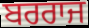
ਬਰਰਾਜ